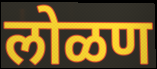
लोळण